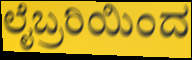
ಲೈಬ್ರರಿಯಿಂದ